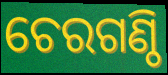
ଚେରଗଣ୍ଠି